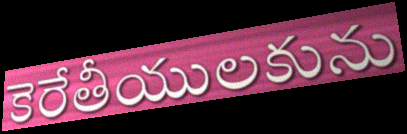
కెరేతీయులకును